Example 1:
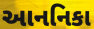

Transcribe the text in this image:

આનનિકા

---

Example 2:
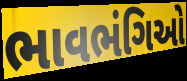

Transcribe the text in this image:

ભાવભંગિઓ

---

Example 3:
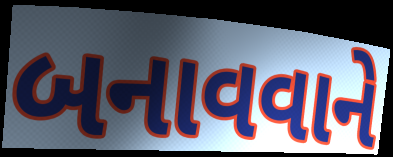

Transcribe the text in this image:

બનાવવાને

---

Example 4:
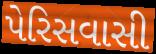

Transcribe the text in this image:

પેરિસવાસી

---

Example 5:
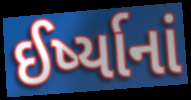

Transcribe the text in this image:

ઈર્ષ્યાનાં